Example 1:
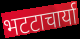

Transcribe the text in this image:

भटटाचार्या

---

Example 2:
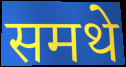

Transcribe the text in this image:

समथे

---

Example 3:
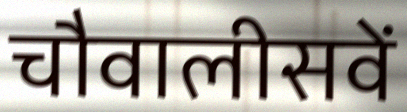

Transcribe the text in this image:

चौवालीसवें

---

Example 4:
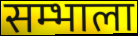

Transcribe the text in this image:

सम्भाला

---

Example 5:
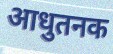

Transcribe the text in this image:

आधुतनक